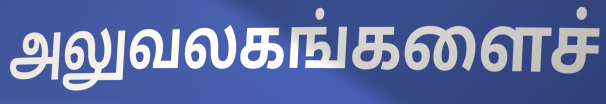
அலுவலகங்களைச்